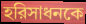
হরিসাধনকে